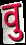
वु